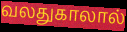
வலதுகாலால்